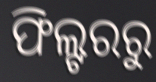
ଫିଲ୍ଟରରୁ